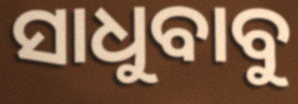
ସାଧୁବାବୁ